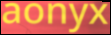
aonyx